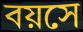
বয়সে